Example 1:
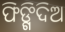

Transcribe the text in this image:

ଫିଙ୍ଗିଦିଅ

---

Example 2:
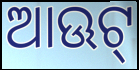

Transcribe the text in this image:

ଆଊଟ୍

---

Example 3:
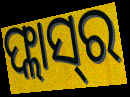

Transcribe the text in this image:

ଫ୍ଲାସ୍‌ର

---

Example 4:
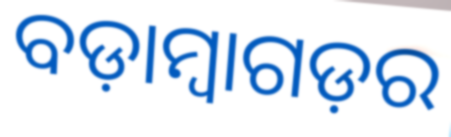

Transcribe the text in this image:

ବଡ଼ାମ୍ବାଗଡ଼ର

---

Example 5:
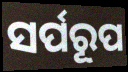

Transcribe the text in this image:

ସର୍ପରୂପ